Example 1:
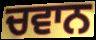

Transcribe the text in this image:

ਚਵਾਨ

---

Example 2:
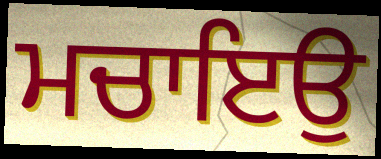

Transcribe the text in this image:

ਮਚਾਇਉ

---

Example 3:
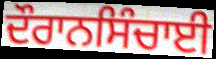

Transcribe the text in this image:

ਦੌਰਾਨਸਿੰਚਾਈ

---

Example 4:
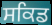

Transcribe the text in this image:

ਸਕਿਡ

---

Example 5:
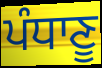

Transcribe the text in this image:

ਪੰਧਾਣੂ